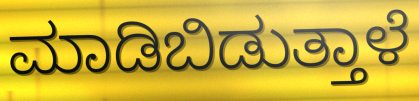
ಮಾಡಿಬಿಡುತ್ತಾಳೆ